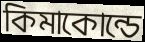
কিমাকোন্ডে